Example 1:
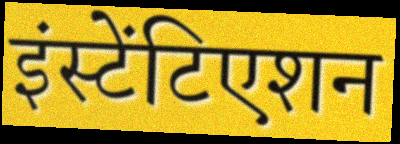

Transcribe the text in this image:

इंस्टेंटिएशन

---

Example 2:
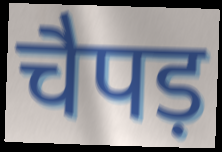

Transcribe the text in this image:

चैपड़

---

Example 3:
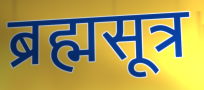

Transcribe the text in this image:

ब्रह्मसूत्र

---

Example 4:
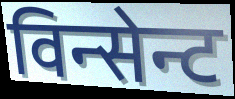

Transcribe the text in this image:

विन्सेन्ट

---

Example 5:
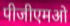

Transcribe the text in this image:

पीजीएमओ